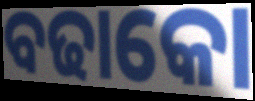
ବଢାକୋ